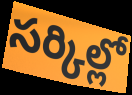
సర్కిల్లో